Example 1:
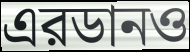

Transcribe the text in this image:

এরডানও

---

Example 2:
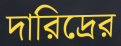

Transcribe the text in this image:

দারিদ্রের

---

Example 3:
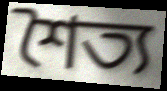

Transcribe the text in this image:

শৈত্য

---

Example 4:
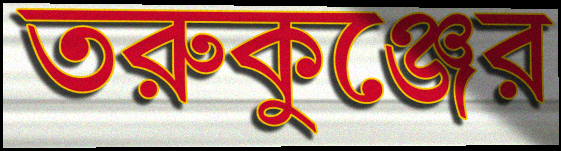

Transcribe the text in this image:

তরুকুঞ্জের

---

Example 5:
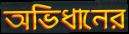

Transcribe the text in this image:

অভিধানের